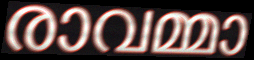
രാവമ്മാ